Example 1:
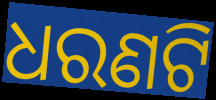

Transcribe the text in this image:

ଧରଣଟି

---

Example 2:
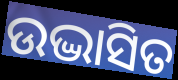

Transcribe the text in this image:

ଉଦ୍ଭାସିତ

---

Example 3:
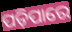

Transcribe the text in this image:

ପଡ଼ିପାରେ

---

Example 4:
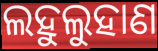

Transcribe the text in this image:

ଲହୁଲୁହାଣ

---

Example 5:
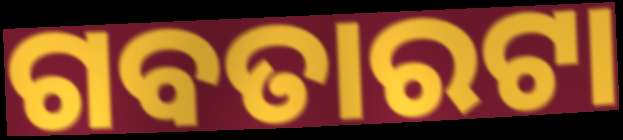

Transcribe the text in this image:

ଗବତାରଟା